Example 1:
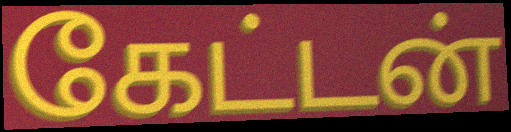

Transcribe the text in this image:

கேட்டன்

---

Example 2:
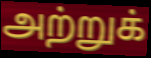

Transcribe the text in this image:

அற்றுக்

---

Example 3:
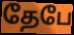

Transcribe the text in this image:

தேபே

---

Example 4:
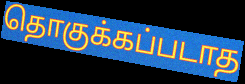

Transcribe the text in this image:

தொகுக்கப்படாத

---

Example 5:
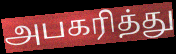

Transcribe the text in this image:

அபகரித்து